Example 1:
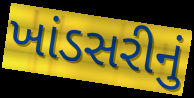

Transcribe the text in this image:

ખાંડસરીનું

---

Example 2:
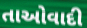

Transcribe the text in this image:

તાઓવાદી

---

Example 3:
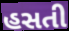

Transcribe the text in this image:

હસતી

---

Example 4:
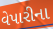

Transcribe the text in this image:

વેપારીના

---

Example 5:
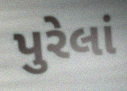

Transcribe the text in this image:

પુરેલાં